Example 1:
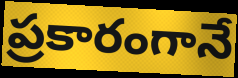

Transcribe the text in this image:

ప్రకారంగానే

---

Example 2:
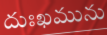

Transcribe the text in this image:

దుఃఖమును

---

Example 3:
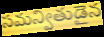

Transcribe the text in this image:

సమన్వితుడైన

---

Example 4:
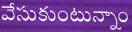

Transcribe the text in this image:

వేసుకుంటున్నాం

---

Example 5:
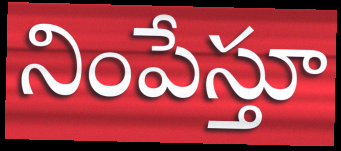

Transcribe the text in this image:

నింపేస్తూ